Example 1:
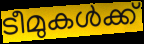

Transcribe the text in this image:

ടീമുകൾക്ക്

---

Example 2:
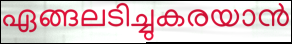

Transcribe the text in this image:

ഏങ്ങലടിച്ചുകരയാൻ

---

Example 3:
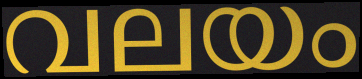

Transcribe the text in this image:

വലയം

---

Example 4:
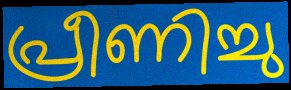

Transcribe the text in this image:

പ്രീണിച്ചു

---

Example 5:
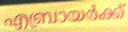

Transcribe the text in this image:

എബ്രായർക്ക്